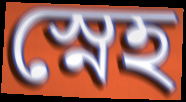
স্নেহ